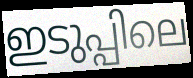
ഇടുപ്പിലെ